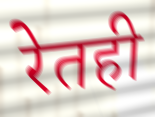
रेतही